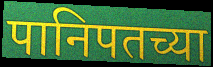
पानिपतच्या